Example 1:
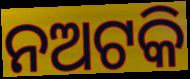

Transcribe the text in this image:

ନଅଟକି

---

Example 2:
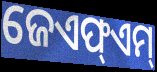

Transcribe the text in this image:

ଜେଏଫ୍ଏମ୍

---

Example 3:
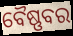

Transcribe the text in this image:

ବୈଷ୍ଣବର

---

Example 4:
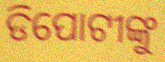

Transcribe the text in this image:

ଡିପୋଟୀଙ୍କୁ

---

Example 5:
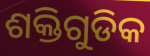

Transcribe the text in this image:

ଶକ୍ତିଗୁଡିକ